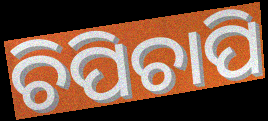
ଚିପିଚାପି